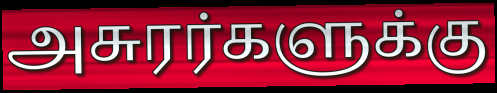
அசுரர்களுக்கு